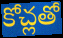
కోచ్లతో